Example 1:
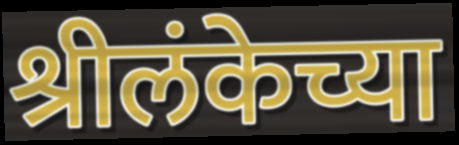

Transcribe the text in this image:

श्रीलंकेच्या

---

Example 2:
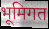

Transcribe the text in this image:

भूमिगत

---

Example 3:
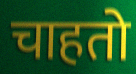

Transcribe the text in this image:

चाहतो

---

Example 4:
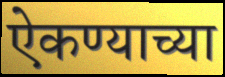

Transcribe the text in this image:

ऐकण्याच्या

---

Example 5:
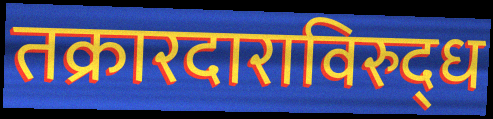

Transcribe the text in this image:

तक्रारदाराविरुद्ध